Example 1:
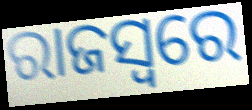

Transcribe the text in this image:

ରାଜସ୍ବରେ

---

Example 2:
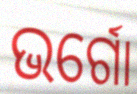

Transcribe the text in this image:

ଭର୍ଗୋ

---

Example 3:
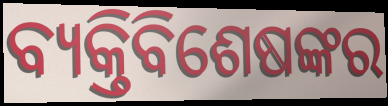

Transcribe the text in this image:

ବ୍ୟକ୍ତିବିଶେଷଙ୍କର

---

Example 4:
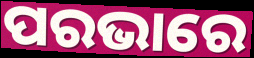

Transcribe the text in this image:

ପରଭାରେ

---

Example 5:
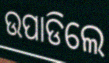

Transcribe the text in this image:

ଉପାଡିଲେ